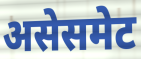
असेसमेट